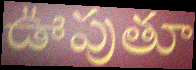
ఊపుతూ